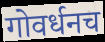
गोवर्धनच